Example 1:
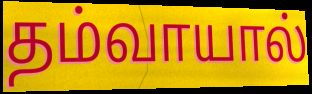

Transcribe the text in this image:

தம்வாயால்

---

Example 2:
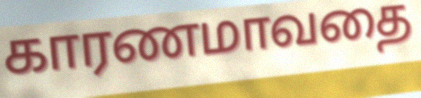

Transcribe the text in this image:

காரணமாவதை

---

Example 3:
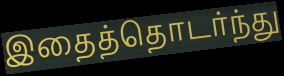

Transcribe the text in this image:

இதைத்தொடர்ந்து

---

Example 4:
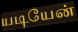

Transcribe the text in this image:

யடியேன்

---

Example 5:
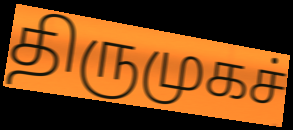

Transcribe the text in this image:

திருமுகச்